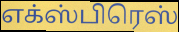
எக்ஸ்பிரெஸ்